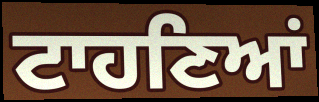
ਟਾਹਣਿਆਂ